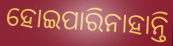
ହୋଇପାରିନାହାନ୍ତି